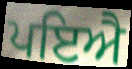
ਪਇਐ